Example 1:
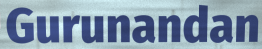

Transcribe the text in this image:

Gurunandan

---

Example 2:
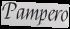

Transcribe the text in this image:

Pampero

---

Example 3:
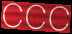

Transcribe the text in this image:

CCC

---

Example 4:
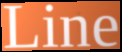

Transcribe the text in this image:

Line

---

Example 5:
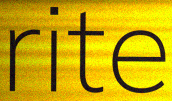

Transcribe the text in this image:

rite